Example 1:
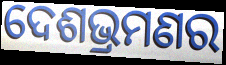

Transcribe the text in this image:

ଦେଶଭ୍ରମଣର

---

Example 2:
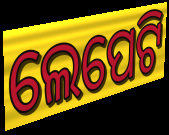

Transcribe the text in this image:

ଲେପେଟି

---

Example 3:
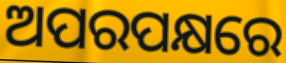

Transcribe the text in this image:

ଅପରପକ୍ଷରେ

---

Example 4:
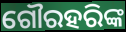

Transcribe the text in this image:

ଗୌରହରିଙ୍କ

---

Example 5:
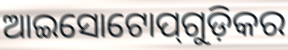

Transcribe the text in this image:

ଆଇସୋଟୋପ୍‌ଗୁଡ଼ିକର